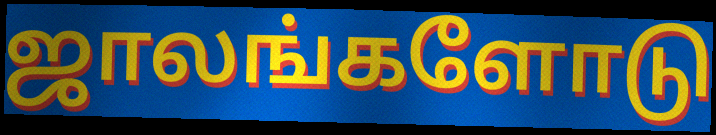
ஜாலங்களோடு